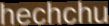
hechchu